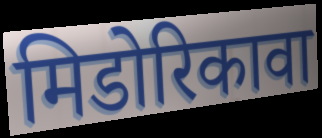
मिडोरिकावा